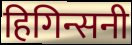
हिगिन्सनी